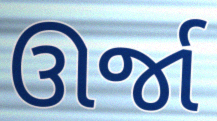
ઊર્જા